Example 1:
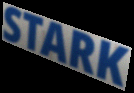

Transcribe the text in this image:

STARK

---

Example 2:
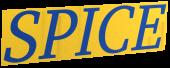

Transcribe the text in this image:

SPICE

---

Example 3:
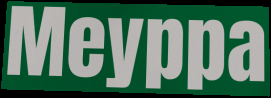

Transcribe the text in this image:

Meyppa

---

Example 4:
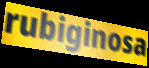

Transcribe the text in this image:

rubiginosa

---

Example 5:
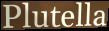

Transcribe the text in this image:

Plutella